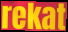
rekat